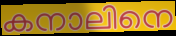
കനാലിനെ